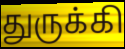
துருக்கி